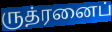
ருத்ரனைப்